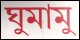
ঘুমামু